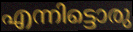
എന്നിട്ടൊരു